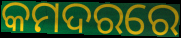
କମଦରରେ